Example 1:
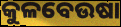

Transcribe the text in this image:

କୁଳବେଉଷା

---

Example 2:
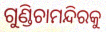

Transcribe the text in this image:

ଗୁଣ୍ଡିଚାମନ୍ଦିରକୁ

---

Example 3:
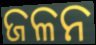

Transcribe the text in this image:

ଜଳନ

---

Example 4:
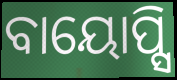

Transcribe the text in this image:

ବାୟୋପ୍ସି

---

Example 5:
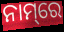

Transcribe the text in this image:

ନାମ୍‌ରେ